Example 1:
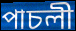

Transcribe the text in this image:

পাচলী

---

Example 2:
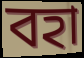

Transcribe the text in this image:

বহা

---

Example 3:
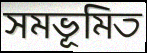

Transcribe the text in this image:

সমভূমিত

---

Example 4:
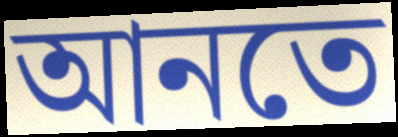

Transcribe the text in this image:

আনতে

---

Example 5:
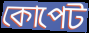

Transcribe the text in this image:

কোপেট